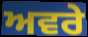
ਅਵਰੇ